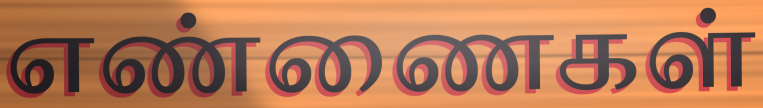
எண்ணைகள்